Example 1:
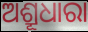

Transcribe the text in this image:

ଅଶ୍ରୂଧାରା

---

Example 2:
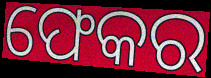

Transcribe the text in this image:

ଫେକର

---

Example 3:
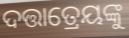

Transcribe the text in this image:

ଦତ୍ତାତ୍ରେୟଙ୍କୁ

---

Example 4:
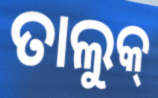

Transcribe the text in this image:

ତାଲୁକ୍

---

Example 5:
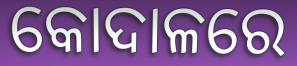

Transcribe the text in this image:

କୋଦାଳରେ